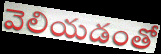
వెలియడంతో